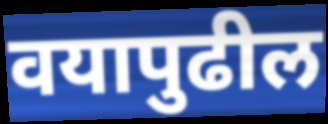
वयापुढील